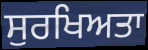
ਸੁਰਖਿਅਤਾ